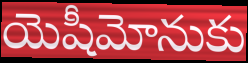
యెషీమోనుకు